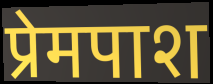
प्रेमपाश